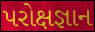
પરોક્ષજ્ઞાન